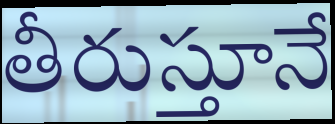
తీరుస్తూనే